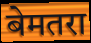
बेमतरा